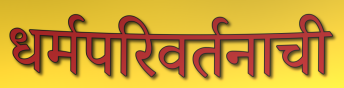
धर्मपरिवर्तनाची